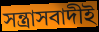
সন্ত্রাসবাদীই